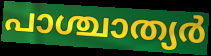
പാശ്ചാത്യർ